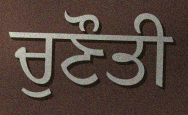
ਚੁਣੌਤੀ